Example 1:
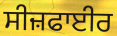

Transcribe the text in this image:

ਸੀਜ਼ਫਾਈਰ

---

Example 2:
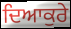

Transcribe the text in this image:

ਦਿਆਕੁਰੇ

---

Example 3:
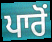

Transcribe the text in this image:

ਪਾਰੋਂ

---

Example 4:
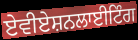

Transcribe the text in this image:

ਏਵੀਏਸ਼ਨਲਾਈਟਿੰਗ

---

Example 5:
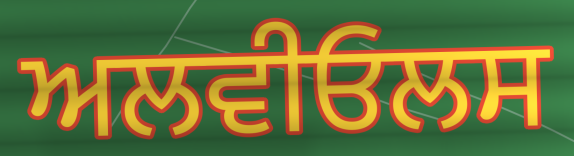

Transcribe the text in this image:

ਅਲਵੀਓਲਸ